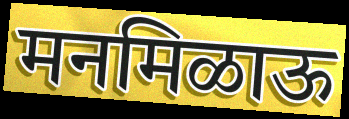
मनमिळाऊ